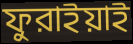
ফুরাইয়াই